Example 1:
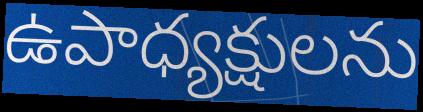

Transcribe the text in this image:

ఉపాధ్యక్షులను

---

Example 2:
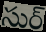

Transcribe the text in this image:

సుర్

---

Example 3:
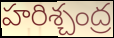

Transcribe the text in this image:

హరిశ్చంద్ర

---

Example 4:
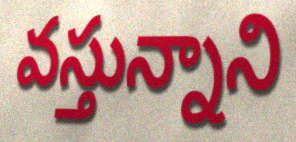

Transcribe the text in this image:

వస్తున్నాని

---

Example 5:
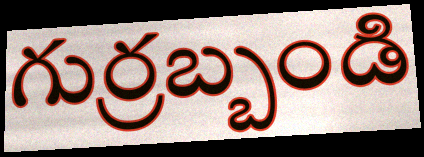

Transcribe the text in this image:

గుర్రబ్బండి